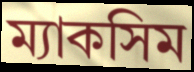
ম্যাকসিম